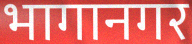
भागानगर